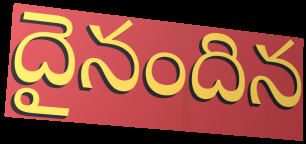
దైనందిన